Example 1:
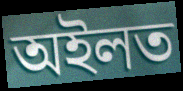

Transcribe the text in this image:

অইলত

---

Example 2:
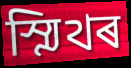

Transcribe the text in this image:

স্মিথৰ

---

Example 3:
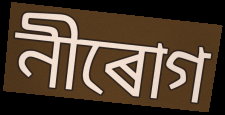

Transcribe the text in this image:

নীৰোগ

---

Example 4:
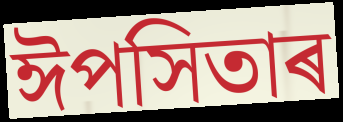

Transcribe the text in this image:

ঈপসিতাৰ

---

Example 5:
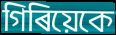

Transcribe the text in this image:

গিৰিয়েকে